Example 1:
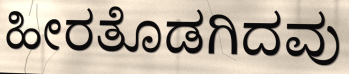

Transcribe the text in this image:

ಹೀರತೊಡಗಿದವು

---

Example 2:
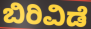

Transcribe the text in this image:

ಬಿರಿವಿಡೆ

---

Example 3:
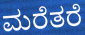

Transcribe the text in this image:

ಮರೆತರೆ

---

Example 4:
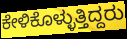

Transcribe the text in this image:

ಕೇಳಿಕೊಳ್ಳುತ್ತಿದ್ದರು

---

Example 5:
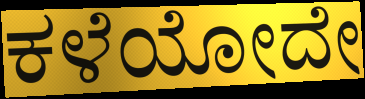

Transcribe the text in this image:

ಕಳೆಯೋದೇ